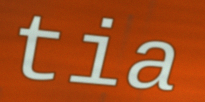
tia